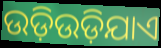
ଉଡ଼ିଉଡ଼ିଯାଏ